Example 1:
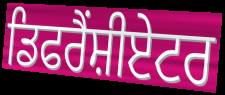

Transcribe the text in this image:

ਡਿਫਰੈਂਸ਼ੀਏਟਰ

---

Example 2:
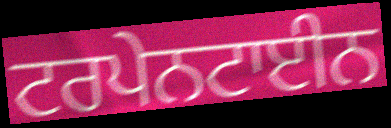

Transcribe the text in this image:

ਟਰਪੇਨਟਾਈਨ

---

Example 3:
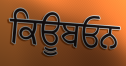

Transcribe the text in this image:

ਕਿਊਬਓਨ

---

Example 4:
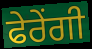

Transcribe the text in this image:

ਫੇਰੇਂਗੀ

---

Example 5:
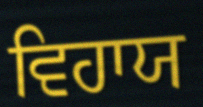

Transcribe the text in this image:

ਵਿਹਾਯ